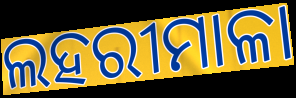
ଲହରୀମାଳା